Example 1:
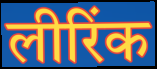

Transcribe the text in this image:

लीरिंक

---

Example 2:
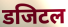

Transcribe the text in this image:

डजिटल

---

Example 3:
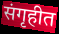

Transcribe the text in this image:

संगृहीत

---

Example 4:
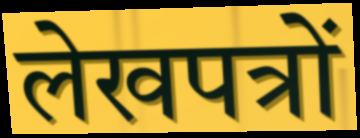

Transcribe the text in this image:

लेखपत्रों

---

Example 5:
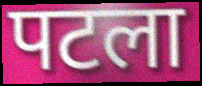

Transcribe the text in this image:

पटला